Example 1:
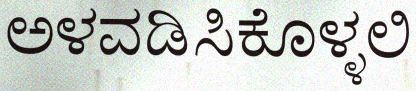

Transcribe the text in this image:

ಅಳವಡಿಸಿಕೊಳ್ಳಲಿ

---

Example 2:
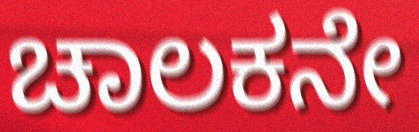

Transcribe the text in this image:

ಚಾಲಕನೇ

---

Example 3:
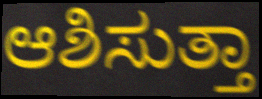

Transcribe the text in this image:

ಆಶಿಸುತ್ತಾ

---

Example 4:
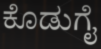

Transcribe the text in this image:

ಕೊಡುಗೈ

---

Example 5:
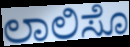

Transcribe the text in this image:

ಲಾಲಿಸೊ